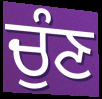
ਚੁੰਣ